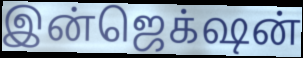
இன்ஜெக்‌ஷன்